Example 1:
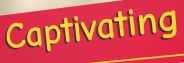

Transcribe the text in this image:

Captivating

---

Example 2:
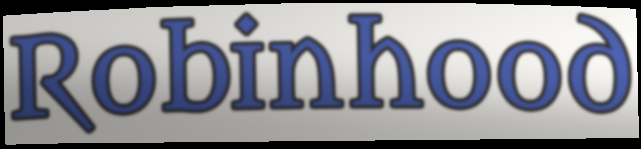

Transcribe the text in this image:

Robinhood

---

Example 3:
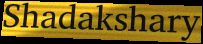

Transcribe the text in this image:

Shadakshary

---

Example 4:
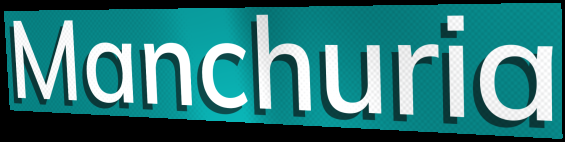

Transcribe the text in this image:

Manchuria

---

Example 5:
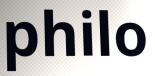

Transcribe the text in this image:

philo